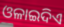
ଓଳାଇଦିଏ